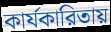
কার্যকারিতায়